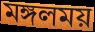
মঙ্গলময়